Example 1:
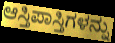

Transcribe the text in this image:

ಆಸ್ತಿಪಾಸ್ತಿಗಳನ್ನು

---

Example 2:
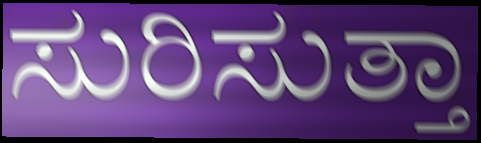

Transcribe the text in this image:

ಸುರಿಸುತ್ತಾ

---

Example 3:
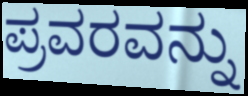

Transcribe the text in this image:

ಪ್ರವರವನ್ನು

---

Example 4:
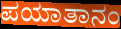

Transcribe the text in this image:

ಪಯಾತಾನಂ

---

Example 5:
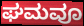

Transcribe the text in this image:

ಘಮವೂ